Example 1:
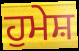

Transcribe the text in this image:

ਹੁਮੇਸ਼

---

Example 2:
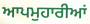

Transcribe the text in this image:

ਆਪਮੁਹਾਰੀਆਂ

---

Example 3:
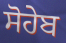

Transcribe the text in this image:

ਸੋਹੇਬ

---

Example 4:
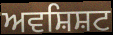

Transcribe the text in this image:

ਅਵਸ਼ਿਸ਼ਟ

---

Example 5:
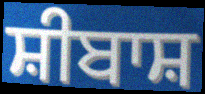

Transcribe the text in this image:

ਸ਼ੀਬਾਸ਼